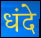
धंदे